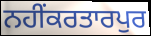
ਨਹੀਂਕਰਤਾਰਪੁਰ